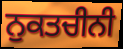
ਨੁਕਤਚੀਨੀ